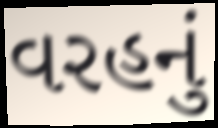
વરહનું